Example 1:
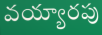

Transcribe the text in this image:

వయ్యారపు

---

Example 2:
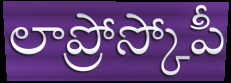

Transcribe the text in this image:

లాప్రోస్కోపీ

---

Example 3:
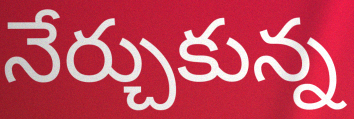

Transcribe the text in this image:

నేర్చుకున్న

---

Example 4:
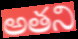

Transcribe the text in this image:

అతని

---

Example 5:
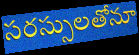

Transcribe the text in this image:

సరస్సులతోనూ